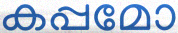
കപ്പമോ